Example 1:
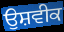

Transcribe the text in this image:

ਉਸ਼ਵੀਕ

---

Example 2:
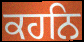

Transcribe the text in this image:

ਕਹਨਿ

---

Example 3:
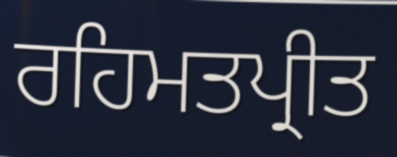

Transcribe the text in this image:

ਰਹਿਮਤਪ੍ਰੀਤ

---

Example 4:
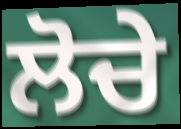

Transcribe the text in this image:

ਲੋਚੇ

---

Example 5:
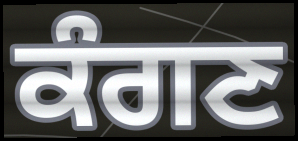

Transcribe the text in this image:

ਕੰਗਣ